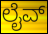
ಲೈವ್